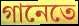
গানেতে